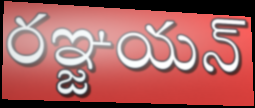
రఞ్జయన్